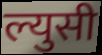
ल्युसी